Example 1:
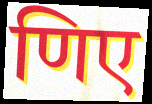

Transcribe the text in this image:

णिए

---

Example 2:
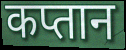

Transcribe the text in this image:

कप्तान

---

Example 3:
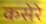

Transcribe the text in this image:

कसेरे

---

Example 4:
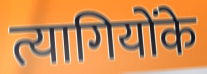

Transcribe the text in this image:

त्यागियोंके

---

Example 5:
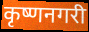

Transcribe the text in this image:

कृष्णनगरी